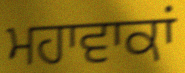
ਮਹਾਵਾਕਾਂ